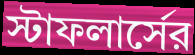
স্টাফলার্সের